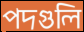
পদগুলি